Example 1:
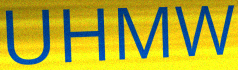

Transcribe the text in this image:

UHMW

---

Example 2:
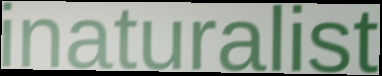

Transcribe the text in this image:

inaturalist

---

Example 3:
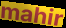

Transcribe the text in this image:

mahir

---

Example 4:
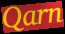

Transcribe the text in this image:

Qarn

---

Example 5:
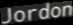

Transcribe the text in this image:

Jordon